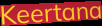
Keertana